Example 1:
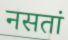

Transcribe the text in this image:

नसतां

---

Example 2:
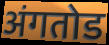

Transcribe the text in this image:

अंगतोड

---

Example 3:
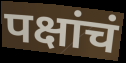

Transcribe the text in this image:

पक्षांचं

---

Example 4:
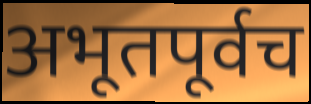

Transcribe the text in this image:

अभूतपूर्वच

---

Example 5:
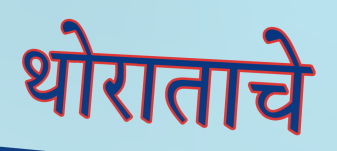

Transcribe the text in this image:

थोराताचे